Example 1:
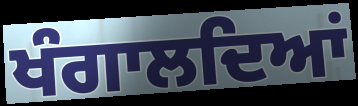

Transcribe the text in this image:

ਖੰਗਾਲਦਿਆਂ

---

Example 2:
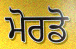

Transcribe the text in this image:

ਮੋਰਡੋ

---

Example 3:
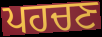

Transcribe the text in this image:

ਪਹਚਣ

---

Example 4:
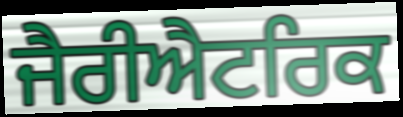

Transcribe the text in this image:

ਜੈਰੀਐਟਰਿਕ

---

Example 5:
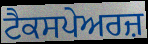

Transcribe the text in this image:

ਟੈਕਸਪੇਅਰਜ਼